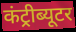
कंट्रीब्यूटर